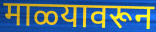
माळ्यावरून